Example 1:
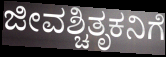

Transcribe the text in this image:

ಜೀವಶ್ಚಿತೃಕನಿಗೆ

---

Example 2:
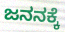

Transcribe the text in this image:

ಜನನಕ್ಕೆ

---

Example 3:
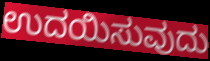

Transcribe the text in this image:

ಉದಯಿಸುವುದು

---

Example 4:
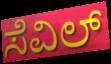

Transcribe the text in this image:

ಸೆವಿಲ್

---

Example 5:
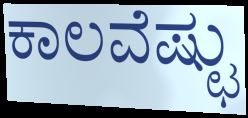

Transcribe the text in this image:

ಕಾಲವೆಷ್ಟು